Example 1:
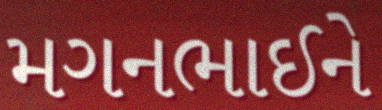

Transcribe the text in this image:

મગનભાઈને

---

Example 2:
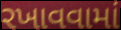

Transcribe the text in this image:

રખાવવામાં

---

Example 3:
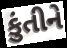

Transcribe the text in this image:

કુંતીને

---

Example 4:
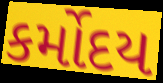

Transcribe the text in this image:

કર્મોદય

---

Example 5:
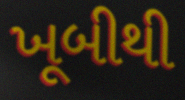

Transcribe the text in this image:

ખૂબીથી